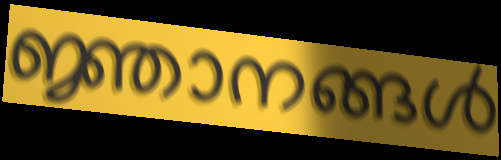
ജ്ഞാനങ്ങൾ